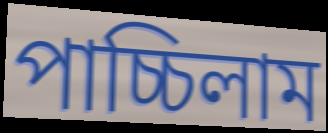
পাচ্চিলাম